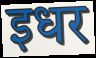
इधर